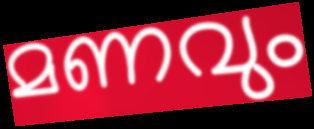
മണവും